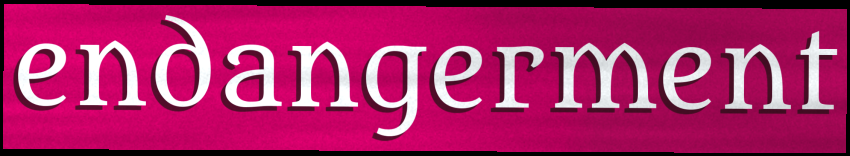
endangerment